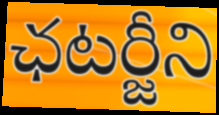
ఛటర్జీని